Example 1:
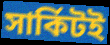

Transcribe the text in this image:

সার্কিটই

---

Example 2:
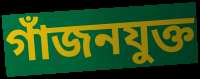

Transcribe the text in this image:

গাঁজনযুক্ত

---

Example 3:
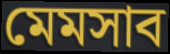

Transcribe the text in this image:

মেমসাব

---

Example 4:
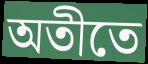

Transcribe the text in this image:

অতীতে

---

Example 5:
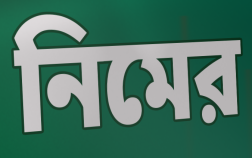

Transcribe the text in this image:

নিমের